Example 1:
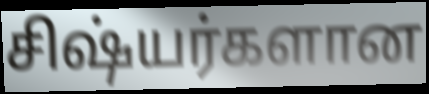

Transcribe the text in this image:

சிஷ்யர்களான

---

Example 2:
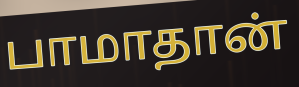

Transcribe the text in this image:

பாமாதான்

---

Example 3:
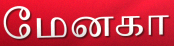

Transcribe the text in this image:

மேனகா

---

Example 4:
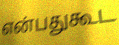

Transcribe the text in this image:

என்பதுகூட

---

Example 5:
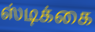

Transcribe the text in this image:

ஸ்டிக்கை